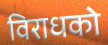
विराधको